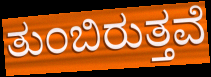
ತುಂಬಿರುತ್ತವೆ